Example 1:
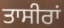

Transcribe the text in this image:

ਤਾਸੀਰਾਂ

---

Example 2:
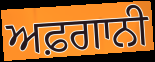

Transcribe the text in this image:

ਅਫ਼ਗਾਨੀ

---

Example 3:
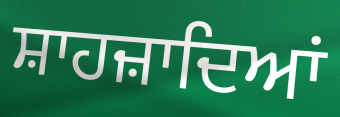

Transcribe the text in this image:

ਸ਼ਾਹਜ਼ਾਦਿਆਂ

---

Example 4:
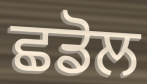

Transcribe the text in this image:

ਛਡੋਲ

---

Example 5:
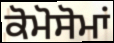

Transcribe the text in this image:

ਕੋਮੋਸੋਮਾਂ